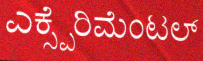
ಎಕ್ಸ್ಪೆರಿಮೆಂಟಲ್